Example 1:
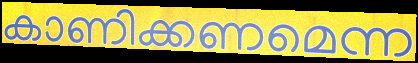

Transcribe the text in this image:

കാണിക്കണമെന്ന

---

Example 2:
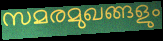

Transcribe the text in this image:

സമരമുഖങ്ങളും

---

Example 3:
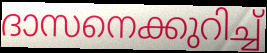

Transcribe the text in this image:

ദാസനെക്കുറിച്ച്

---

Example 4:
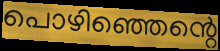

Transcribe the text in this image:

പൊഴിഞ്ഞെന്റെ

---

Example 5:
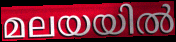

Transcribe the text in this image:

മലയയിൽ